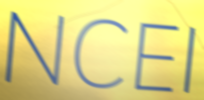
NCEI